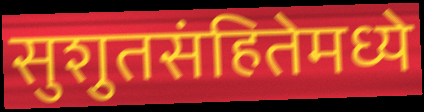
सुश्रुतसंहितेमध्ये